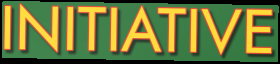
INITIATIVE